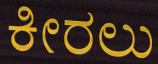
ಕೀರಲು